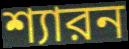
শ্যারন